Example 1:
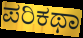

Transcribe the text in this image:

ಪರಿಕಥಾ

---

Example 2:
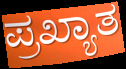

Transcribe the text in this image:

ಪ್ರಖ್ಯಾತ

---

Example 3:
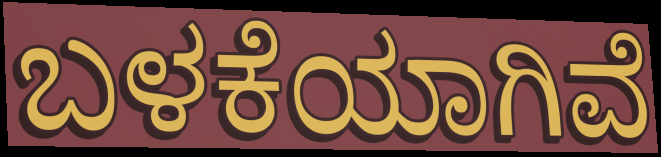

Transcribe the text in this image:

ಬಳಕೆಯಾಗಿವೆ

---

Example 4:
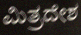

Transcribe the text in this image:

ಮಿತ್ರದೇಶ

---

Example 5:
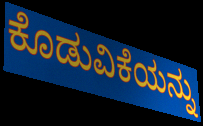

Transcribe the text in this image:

ಕೊಡುವಿಕೆಯನ್ನು